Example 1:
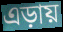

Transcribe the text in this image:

এড়ায়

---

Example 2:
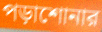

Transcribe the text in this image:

পড়াশোনার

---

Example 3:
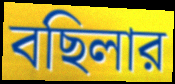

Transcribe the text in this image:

বছিলার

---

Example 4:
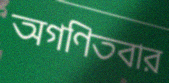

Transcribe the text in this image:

অগণিতবার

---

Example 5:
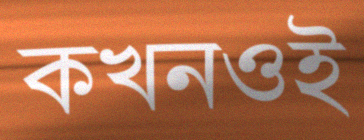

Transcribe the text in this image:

কখনওই